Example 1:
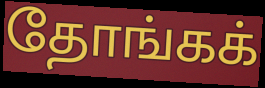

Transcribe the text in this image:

தோங்கக்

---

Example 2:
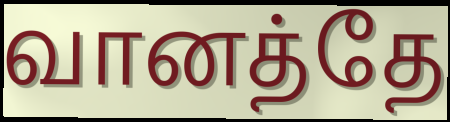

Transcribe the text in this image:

வானத்தே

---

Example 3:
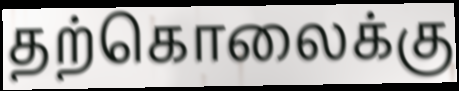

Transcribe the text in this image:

தற்கொலைக்கு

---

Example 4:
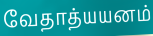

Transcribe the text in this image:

வேதாத்யயனம்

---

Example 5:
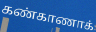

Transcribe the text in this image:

கண்காணாக்